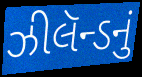
ઝીલૅન્ડનું